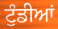
ਟੁੰਡੀਆਂ